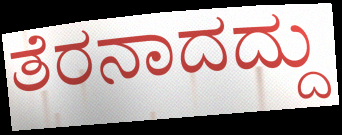
ತೆರನಾದದ್ದು